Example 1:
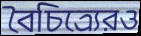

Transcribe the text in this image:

বৈচিত্র্যেরও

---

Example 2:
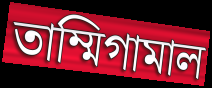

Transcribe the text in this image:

তাম্মিগামাল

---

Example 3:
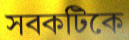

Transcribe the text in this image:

সবকটিকে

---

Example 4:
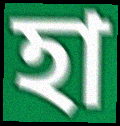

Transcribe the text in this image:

হা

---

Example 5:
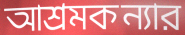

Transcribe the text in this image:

আশ্রমকন্যার